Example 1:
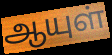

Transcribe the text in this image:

ஆயுள்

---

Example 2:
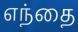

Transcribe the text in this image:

எந்தை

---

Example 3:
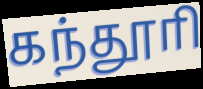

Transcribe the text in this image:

கந்தூரி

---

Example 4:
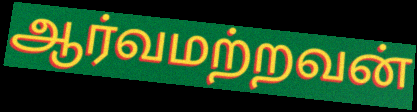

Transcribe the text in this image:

ஆர்வமற்றவன்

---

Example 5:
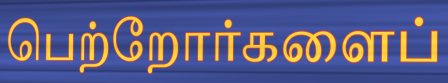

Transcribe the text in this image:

பெற்றோர்களைப்